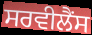
ਸਰਵੀਲੈਂਸ